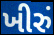
ખીરું